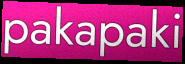
pakapaki